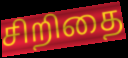
சிறிதை